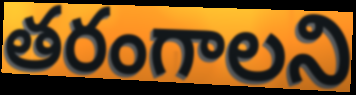
తరంగాలని